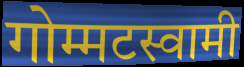
गोम्मटस्वामी